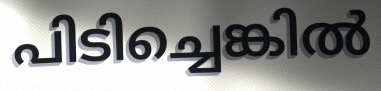
പിടിച്ചെങ്കിൽ